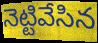
నెట్టివేసిన